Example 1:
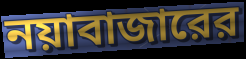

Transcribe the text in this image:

নয়াবাজারের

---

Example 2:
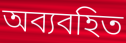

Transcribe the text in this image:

অব্যবহিত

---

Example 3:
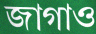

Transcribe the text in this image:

জাগাও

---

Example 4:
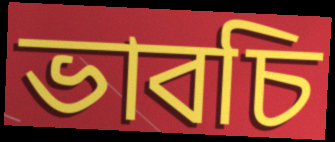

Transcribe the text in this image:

ভাবচি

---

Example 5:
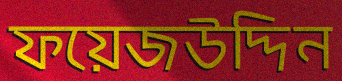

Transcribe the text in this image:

ফয়েজউদ্দিন